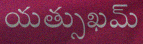
యత్సుఖమ్